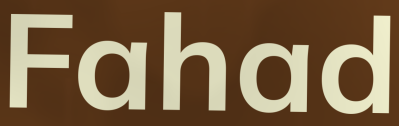
Fahad